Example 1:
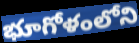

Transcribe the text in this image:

భూగోళంలోని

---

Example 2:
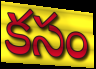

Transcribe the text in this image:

కసం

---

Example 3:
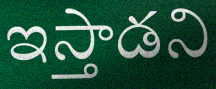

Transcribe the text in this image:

ఇస్తాడని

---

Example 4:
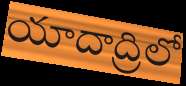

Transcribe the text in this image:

యాదాద్రిలో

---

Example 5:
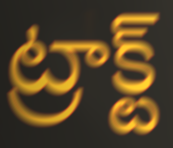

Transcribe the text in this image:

ట్రాక్ట్